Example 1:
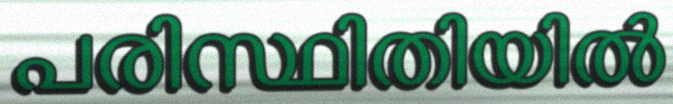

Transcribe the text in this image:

പരിസ്ഥിതിയിൽ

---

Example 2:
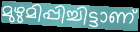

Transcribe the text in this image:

മുഴുമിപ്പിച്ചിട്ടാണ്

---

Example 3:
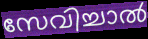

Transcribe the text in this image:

സേവിച്ചാൽ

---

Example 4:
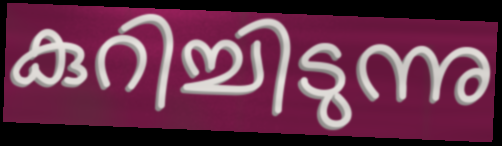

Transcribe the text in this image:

കുറിച്ചിടുന്നു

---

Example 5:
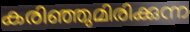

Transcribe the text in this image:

കരിഞ്ഞുമിരിക്കുന്ന